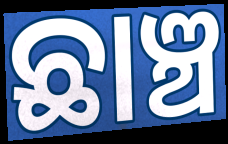
ଛାଞ୍ଚ